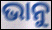
ଭାନୁ